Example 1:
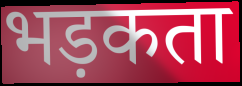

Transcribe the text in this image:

भड़कता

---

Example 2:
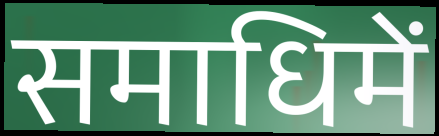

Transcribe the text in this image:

समाधिमें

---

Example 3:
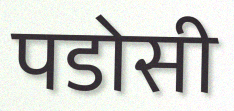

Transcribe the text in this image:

पडोसी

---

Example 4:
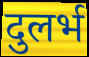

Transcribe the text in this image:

दुलर्भ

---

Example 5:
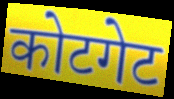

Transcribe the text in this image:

कोटगेट